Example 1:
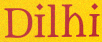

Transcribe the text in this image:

Dilhi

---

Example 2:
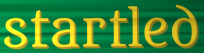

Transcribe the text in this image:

startled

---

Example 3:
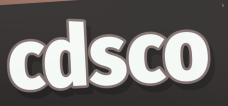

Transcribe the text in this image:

cdsco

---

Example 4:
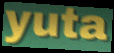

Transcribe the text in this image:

yuta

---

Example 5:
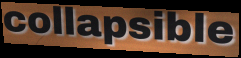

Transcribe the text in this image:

collapsible